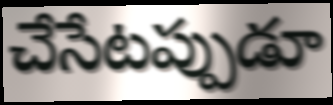
చేసేటప్పుడూ